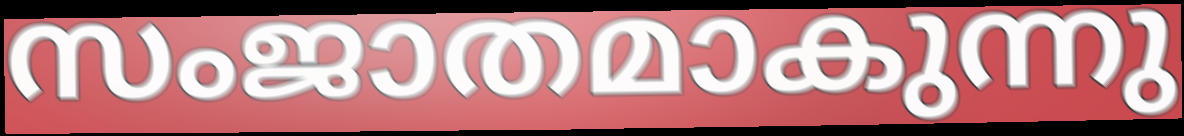
സംജാതമാകുന്നു